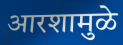
आरशामुळे